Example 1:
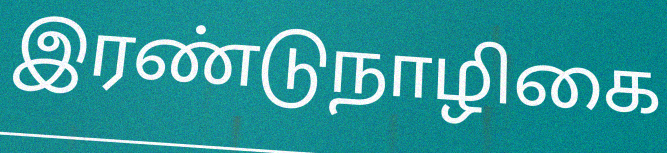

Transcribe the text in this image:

இரண்டுநாழிகை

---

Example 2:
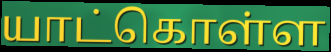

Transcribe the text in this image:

யாட்கொள்ள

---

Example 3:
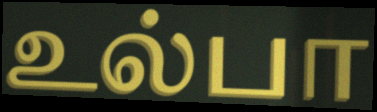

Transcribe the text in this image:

உல்பா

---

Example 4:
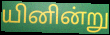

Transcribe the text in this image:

யினின்று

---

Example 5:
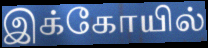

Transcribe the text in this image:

இக்கோயில்